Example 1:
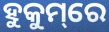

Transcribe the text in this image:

ହୁକୁମ୍‌ରେ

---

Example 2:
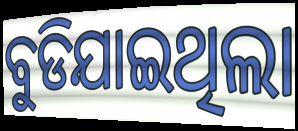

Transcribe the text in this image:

ବୁଡିଯାଇଥିଲା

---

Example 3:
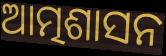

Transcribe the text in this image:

ଆତ୍ମଶାସନ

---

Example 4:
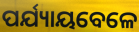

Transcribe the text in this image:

ପର୍ଯ୍ୟାୟବେଳେ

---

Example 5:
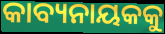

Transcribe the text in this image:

କାବ୍ୟନାୟକକୁ